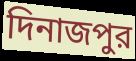
দিনাজপুর